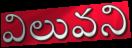
విలువని